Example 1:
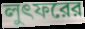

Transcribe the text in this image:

লুৎফরের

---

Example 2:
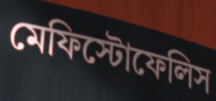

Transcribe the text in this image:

মেফিস্টোফেলিস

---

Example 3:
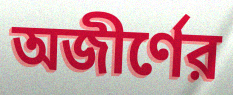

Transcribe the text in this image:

অজীর্ণের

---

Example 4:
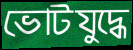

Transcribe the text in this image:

ভোটযুদ্ধে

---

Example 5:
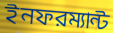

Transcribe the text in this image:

ইনফরম্যান্ট